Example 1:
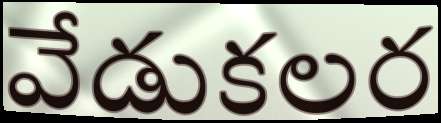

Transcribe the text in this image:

వేడుకలర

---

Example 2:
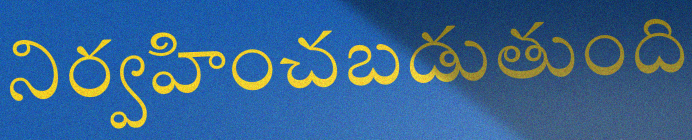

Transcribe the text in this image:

నిర్వహించబడుతుంది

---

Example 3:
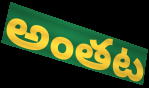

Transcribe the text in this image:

అంతట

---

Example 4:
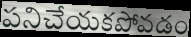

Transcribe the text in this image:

పనిచేయకపోవడం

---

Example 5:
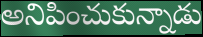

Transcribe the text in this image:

అనిపించుకున్నాడు